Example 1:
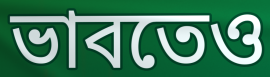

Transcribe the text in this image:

ভাবতেও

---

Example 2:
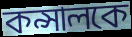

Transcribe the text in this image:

কন্সালকে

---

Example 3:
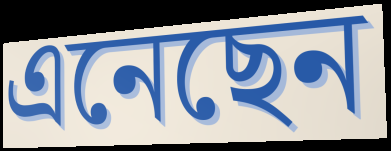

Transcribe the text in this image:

এনেছেন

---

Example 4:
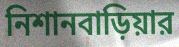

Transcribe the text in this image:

নিশানবাড়িয়ার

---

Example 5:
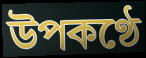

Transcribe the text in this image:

উপকণ্ঠে